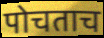
पोचताच